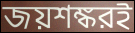
জয়শঙ্করই